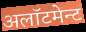
अलॉटमेन्ट